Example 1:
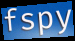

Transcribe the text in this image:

fspy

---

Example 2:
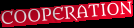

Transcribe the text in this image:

COOPERATION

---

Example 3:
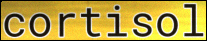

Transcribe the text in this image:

cortisol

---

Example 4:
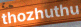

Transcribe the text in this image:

thozhuthu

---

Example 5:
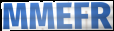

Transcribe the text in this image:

MMEFR